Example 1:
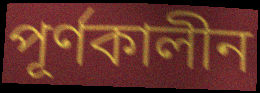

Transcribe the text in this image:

পূৰ্ণকালীন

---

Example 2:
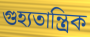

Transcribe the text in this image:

গুহ্যতান্ত্ৰিক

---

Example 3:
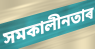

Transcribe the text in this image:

সমকালীনতাৰ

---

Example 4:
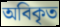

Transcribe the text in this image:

অবিকৃত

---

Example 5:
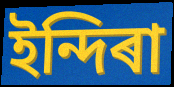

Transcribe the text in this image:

ইন্দিৰা